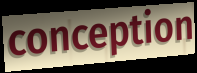
conception